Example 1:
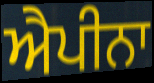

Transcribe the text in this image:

ਐਪੀਨਾ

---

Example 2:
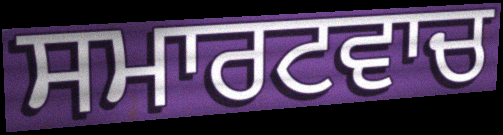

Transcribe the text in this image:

ਸਮਾਰਟਵਾਚ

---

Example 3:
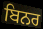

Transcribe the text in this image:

ਬਿਨਰ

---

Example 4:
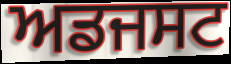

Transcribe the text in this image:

ਅਡਜਸਟ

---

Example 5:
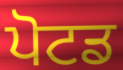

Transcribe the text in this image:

ਪੋਟਡ